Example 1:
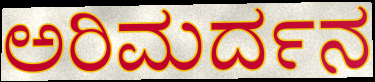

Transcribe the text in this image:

ಅರಿಮರ್ದನ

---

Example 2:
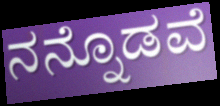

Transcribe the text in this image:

ನನ್ನೊಡವೆ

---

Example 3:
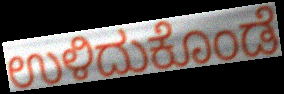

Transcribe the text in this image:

ಉಳಿದುಕೊಂಡೆ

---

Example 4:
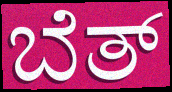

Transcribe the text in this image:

ಬೆತ್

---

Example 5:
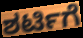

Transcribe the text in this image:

ಶರ್ಟಿಗೆ